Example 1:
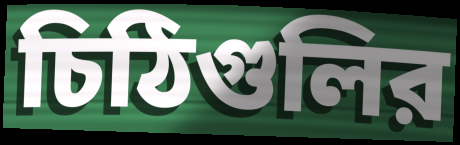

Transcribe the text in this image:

চিঠিগুলির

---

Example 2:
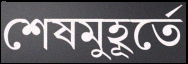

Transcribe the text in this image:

শেষমুহূর্তে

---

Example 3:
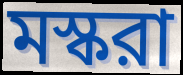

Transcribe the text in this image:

মস্করা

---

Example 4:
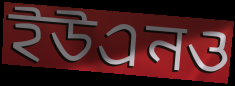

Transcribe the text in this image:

ইউএনও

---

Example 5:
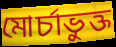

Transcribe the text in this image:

মোর্চাভুক্ত